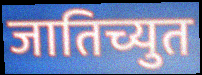
जातिच्युत